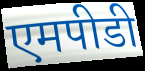
एमपीडी